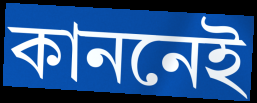
কাননেই